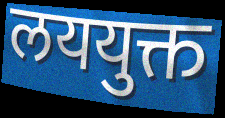
लययुक्त